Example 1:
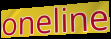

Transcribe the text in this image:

oneline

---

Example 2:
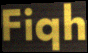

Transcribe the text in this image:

Fiqh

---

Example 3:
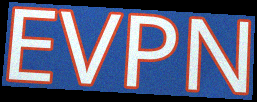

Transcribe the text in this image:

EVPN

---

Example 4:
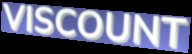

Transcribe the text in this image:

VISCOUNT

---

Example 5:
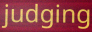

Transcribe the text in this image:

judging